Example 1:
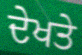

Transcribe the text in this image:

ਦੇਖਤੇ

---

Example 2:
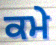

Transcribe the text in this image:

ਕਮੇ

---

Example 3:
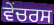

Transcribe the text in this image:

ਵੇਂਚਰਸ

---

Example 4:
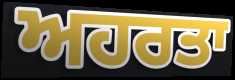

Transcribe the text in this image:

ਅਹਰਤਾ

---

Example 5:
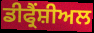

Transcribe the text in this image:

ਡੀਫ੍ਰੈਂਸ਼ੀਅਲ